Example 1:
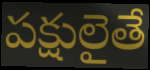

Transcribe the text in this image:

పక్షులైతే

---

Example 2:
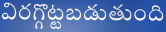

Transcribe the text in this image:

విరగ్గొట్టబడుతుంది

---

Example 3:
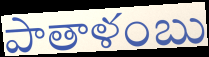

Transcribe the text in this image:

పాతాళంబు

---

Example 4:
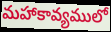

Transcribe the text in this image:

మహాకావ్యములో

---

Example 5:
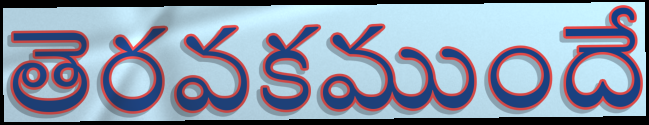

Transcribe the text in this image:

తెరవకముందే